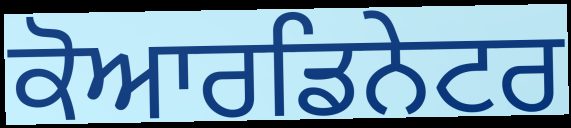
ਕੋਆਰਡਿਨੇਟਰ